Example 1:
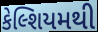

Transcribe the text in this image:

કેલ્શિયમથી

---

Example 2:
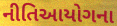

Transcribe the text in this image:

નીતિઆયોગના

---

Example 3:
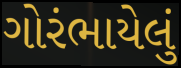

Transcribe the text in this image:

ગોરંભાયેલું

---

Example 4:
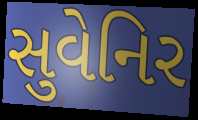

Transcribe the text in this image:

સુવેનિર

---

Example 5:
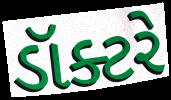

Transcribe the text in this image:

ડૉક્ટરે